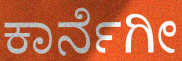
ಕಾರ್ನೆಗೀ